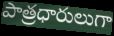
పాత్రధారులుగా